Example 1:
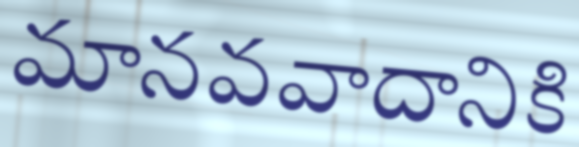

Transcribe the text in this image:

మానవవాదానికి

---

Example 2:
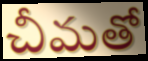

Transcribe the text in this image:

చీమతో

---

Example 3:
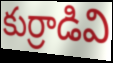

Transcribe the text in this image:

కుర్రాడివి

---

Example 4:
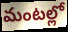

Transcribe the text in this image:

మంటల్లో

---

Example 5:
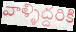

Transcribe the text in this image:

వాళ్ళిద్దరికి